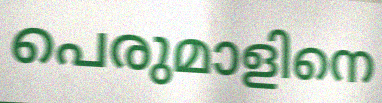
പെരുമാളിനെ